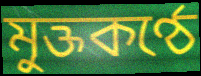
মুক্তকণ্ঠে